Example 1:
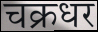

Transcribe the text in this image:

चक्रधर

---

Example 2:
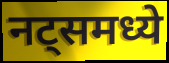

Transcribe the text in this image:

नट्समध्ये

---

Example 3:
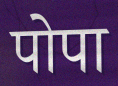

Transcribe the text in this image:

पोपा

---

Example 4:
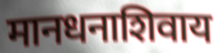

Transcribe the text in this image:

मानधनाशिवाय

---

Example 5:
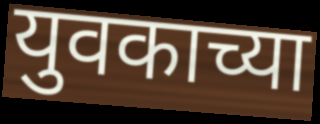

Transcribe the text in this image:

युवकाच्या